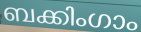
ബക്കിംഗാം